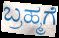
ಬ್ರಹ್ಮಗೆ